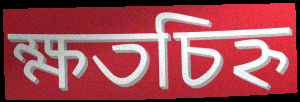
ক্ষতচিহ্ন